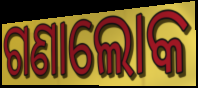
ଗଣାଲୋକ